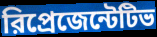
রিপ্রেজেন্টেটিভ